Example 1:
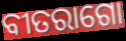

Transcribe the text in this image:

ବୀତରାଗୋ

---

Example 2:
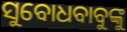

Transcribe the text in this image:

ସୁବୋଧବାବୁଙ୍କୁ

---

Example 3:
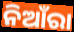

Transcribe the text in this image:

ନିଆଁରା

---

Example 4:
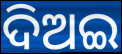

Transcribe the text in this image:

ଦିଅଇ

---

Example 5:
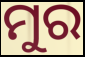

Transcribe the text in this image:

ମୁର